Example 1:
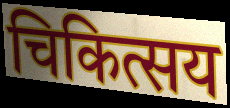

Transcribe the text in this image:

चिकित्सय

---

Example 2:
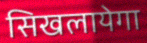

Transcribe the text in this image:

सिखलायेगा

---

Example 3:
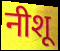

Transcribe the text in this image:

नीशू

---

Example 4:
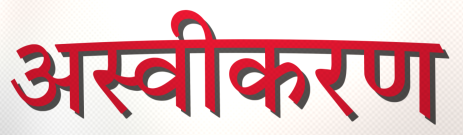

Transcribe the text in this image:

अस्वीकरण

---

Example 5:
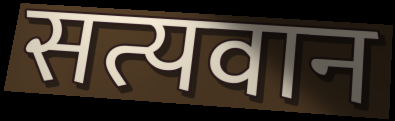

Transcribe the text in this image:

सत्यवान